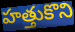
హత్తుకొని